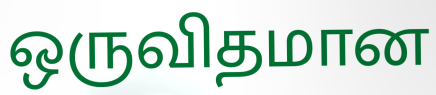
ஒருவிதமான